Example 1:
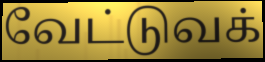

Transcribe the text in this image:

வேட்டுவக்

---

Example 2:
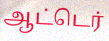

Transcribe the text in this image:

ஆட்டெர்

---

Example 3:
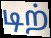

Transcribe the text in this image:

டிற்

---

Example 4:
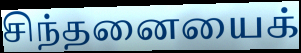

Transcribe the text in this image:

சிந்தனையைக்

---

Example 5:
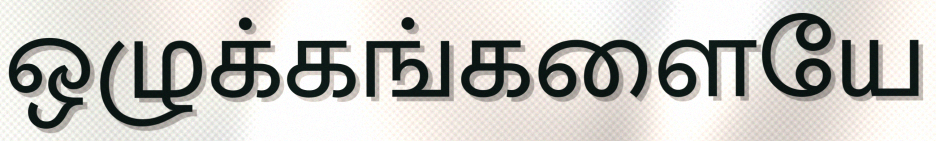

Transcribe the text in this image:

ஒழுக்கங்களையே